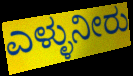
ಎಳ್ಳುನೀರು